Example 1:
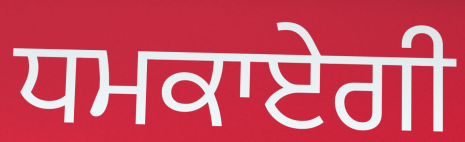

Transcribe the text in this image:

ਧਮਕਾਏਗੀ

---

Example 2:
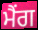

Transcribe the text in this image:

ਮੈਂਗ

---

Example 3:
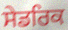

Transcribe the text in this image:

ਸੇਡਰਿਕ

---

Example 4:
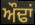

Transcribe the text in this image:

ਔਢਾਂ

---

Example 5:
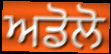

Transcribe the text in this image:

ਅਡੋਲੋ